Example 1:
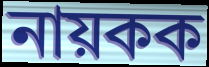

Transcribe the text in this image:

নায়কক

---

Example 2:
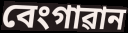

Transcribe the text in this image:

বেংগাৱান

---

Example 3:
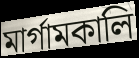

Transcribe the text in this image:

মাৰ্গামকালি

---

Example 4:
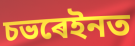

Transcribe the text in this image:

চভৰেইনত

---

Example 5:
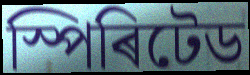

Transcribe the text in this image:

স্পিৰিটেড